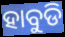
ହାବୁଡି